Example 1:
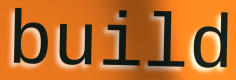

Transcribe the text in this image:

build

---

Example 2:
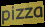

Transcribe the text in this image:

pizza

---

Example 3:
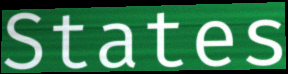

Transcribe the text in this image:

States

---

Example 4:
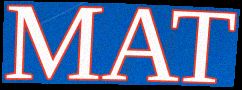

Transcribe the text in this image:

MAT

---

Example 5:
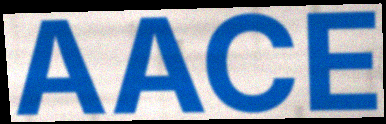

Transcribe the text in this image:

AACE